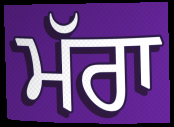
ਮੱਰਾ